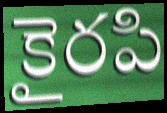
కైరపి